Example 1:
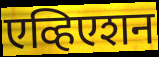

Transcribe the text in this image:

एव्हिएशन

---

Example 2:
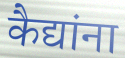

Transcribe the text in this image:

कैद्यांना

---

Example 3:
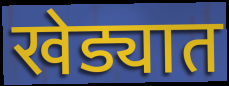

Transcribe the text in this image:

खेड्यात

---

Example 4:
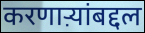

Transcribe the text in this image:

करणाऱ्‍यांबद्दल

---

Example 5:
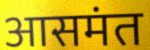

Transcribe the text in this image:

आसमंत